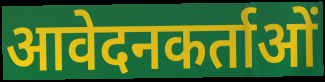
आवेदनकर्ताओं